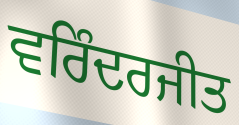
ਵਰਿੰਦਰਜੀਤ